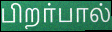
பிறர்பால்